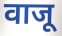
वाजू